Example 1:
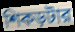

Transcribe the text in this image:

শিকড়টার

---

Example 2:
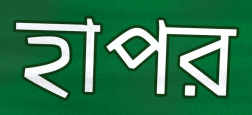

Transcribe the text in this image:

হাপর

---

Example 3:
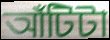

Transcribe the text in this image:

আঁটিটা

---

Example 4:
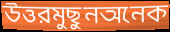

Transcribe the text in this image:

উত্তরমুছুনঅনেক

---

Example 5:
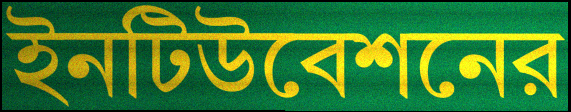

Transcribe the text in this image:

ইনটিউবেশনের